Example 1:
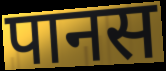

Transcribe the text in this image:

पानस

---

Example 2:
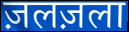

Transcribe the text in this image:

ज़लज़ला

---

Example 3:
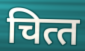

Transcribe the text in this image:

चित्‍त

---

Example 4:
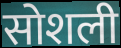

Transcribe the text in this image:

सोशली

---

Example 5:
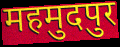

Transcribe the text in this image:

महमुदपुर